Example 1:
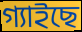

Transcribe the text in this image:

গ্যাইছে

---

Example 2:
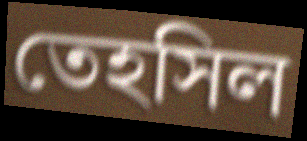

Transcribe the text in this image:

তেহসিল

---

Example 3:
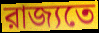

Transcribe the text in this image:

রাজ্যতে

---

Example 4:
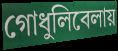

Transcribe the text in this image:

গোধুলিবেলায়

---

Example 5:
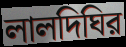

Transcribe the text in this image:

লালদিঘির